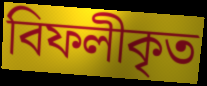
বিফলীকৃত